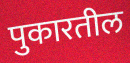
पुकारतील